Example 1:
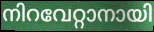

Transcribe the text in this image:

നിറവേറ്റാനായി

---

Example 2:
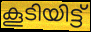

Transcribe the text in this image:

കൂടിയിട്ട്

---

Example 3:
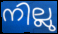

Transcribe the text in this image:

നില്ലു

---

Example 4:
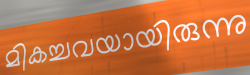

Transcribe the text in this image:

മികച്ചവയായിരുന്നു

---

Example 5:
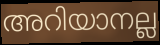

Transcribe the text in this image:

അറിയാനല്ല